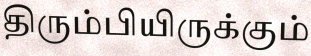
திரும்பியிருக்கும்